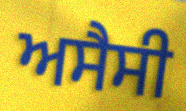
ਅਸੈਸੀ